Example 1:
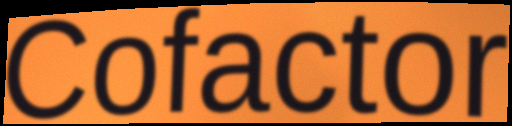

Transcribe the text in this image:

Cofactor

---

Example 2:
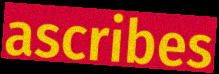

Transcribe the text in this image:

ascribes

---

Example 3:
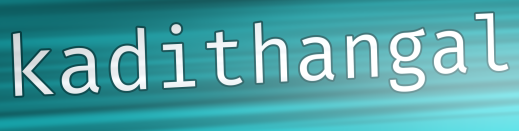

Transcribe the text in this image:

kadithangal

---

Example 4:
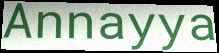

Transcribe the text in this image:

Annayya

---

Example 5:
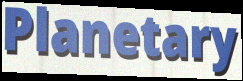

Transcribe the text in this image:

Planetary